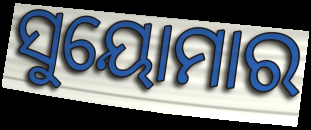
ସୁୟୋମାର